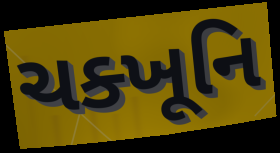
ચક્ખૂનિ